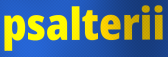
psalterii